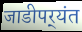
जाडीपर्यंत